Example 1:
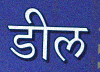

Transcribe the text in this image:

डील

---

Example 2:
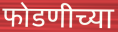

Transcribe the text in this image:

फोडणीच्या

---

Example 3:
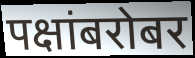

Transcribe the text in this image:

पक्षांबरोबर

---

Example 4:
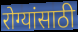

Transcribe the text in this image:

रोग्यांसाठी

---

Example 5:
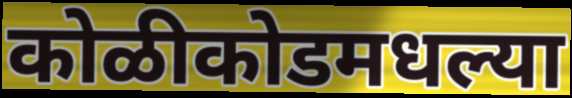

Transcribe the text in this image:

कोळीकोडमधल्या